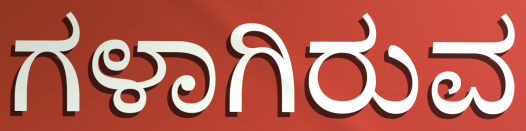
ಗಳಾಗಿರುವ